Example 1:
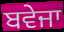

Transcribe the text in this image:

ਬਵੇਜਾ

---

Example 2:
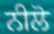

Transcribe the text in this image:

ਨੀਲੋ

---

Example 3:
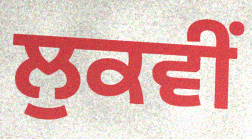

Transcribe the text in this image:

ਲੁਕਵੀਂ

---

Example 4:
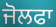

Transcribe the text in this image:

ਜੋਲਫਾ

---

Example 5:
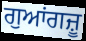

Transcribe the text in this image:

ਗੁਆਂਗਜ਼ੂ